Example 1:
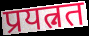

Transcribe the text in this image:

प्रयत्नत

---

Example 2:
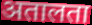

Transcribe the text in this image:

अतालता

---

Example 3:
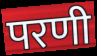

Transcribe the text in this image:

परणी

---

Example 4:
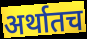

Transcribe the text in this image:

अर्थातच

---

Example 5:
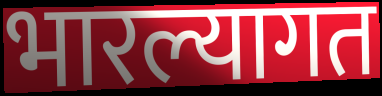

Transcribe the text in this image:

भारल्यागत